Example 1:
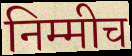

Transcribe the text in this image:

निम्मीच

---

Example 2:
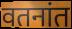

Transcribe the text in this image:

वतनांत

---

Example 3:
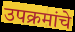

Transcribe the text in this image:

उपक्रमांचे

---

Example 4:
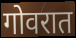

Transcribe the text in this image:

गोवरात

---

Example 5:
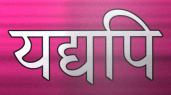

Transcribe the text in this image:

यद्यपि